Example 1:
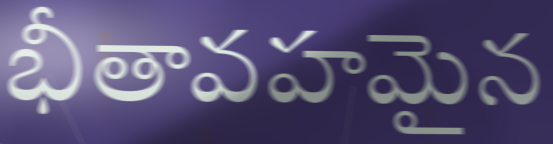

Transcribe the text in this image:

భీతావహమైన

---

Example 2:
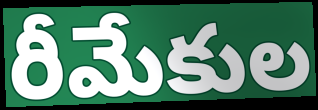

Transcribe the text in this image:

రీమేకుల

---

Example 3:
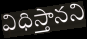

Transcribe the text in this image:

విధిస్తానని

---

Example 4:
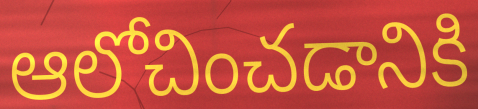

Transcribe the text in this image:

ఆలోచించడానికి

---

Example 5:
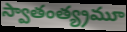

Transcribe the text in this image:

స్వాతంత్య్రమూ